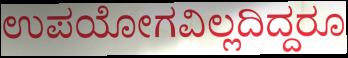
ಉಪಯೋಗವಿಲ್ಲದಿದ್ದರೂ